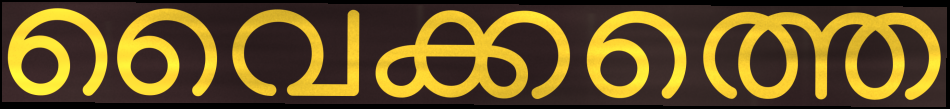
വൈക്കത്തെ